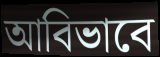
আবিভাবে